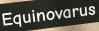
Equinovarus